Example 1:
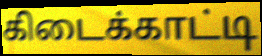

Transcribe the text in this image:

கிடைக்காட்டி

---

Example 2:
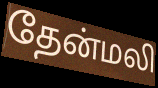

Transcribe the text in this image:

தேன்மலி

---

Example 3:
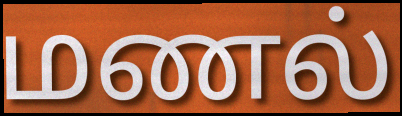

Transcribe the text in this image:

மணல்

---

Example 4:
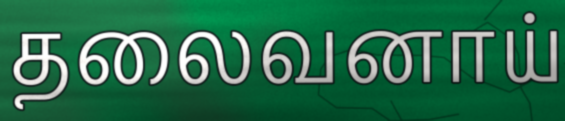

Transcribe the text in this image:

தலைவனாய்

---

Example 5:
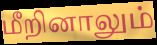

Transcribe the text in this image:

மீறினாலும்